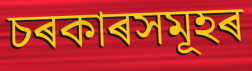
চৰকাৰসমূহৰ